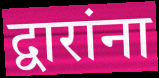
द्वारांना